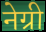
नेग्री